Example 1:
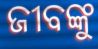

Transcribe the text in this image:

ଜୀବଙ୍କୁ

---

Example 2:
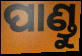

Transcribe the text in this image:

ପାଣ୍ଡୁ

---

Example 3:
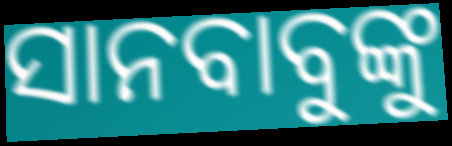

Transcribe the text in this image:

ସାନବାବୁଙ୍କୁ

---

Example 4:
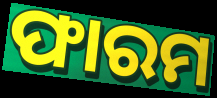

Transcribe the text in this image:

ଫାରମ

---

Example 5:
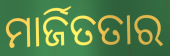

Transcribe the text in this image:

ମାର୍ଜିତତାର